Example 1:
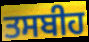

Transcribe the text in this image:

ਤਸਬੀਹ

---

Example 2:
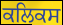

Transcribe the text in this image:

ਕਲਿਕਸ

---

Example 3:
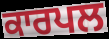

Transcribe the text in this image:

ਕਾਰਪਲ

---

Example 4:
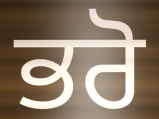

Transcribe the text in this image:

ਭਰੋ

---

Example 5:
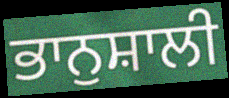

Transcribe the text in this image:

ਭਾਨੁਸ਼ਾਲੀ